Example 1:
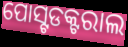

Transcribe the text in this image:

ପୋସ୍ଟଡକ୍ଟରାଲ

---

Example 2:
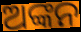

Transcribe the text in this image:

ଅଙ୍କନ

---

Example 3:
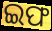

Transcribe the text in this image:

ଇଫ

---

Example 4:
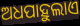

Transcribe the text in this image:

ଅଧପାହୁଲାଏ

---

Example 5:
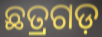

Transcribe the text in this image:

ଛତ୍ରଗଡ଼